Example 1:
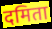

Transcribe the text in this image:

दमिता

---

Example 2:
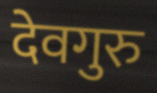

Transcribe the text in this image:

देवगुरु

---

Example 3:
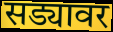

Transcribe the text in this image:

सड्यावर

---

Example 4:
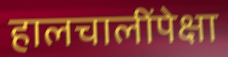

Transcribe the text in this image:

हालचालींपेक्षा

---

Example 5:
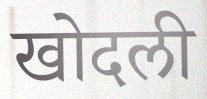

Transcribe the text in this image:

खोदली